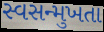
સ્વસન્મુખતા